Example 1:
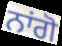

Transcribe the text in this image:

ਨਾਂਗੋ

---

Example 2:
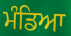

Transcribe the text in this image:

ਮੰਡਿਆ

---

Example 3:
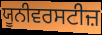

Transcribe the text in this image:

ਯੂਨੀਵਰਸਟੀਜ਼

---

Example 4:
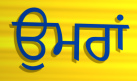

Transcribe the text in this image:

ਉੁਮਰਾਂ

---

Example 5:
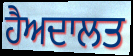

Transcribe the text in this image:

ਹੈਅਦਾਲਤ